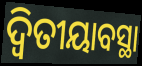
ଦ୍ବିତୀୟାବସ୍ଥା